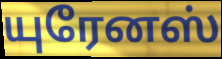
யுரேனஸ்